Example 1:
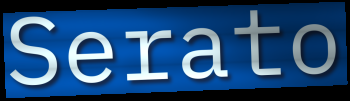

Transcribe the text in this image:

Serato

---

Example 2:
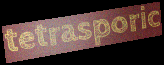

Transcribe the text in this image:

tetrasporic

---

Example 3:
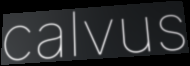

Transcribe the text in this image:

calvus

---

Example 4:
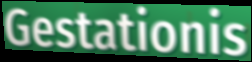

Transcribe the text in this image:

Gestationis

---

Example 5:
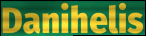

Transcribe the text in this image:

Danihelis